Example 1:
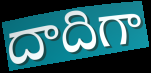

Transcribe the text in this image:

దాదిగా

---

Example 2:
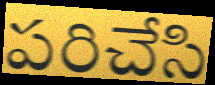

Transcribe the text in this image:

పరిచేసి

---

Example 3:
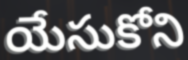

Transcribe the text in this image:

యేసుకోని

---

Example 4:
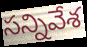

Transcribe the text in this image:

సన్నివేశ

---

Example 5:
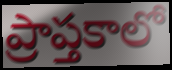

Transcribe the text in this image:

ప్రాప్తకాలో